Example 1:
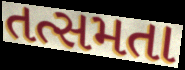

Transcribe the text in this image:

તત્સમતા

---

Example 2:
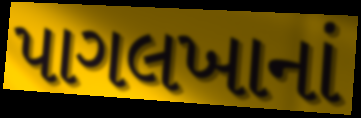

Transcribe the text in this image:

પાગલખાનાં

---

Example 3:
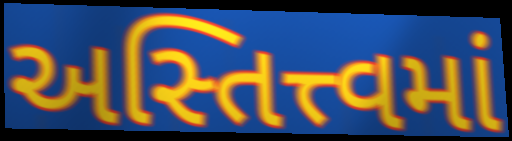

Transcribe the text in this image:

અસ્તિત્ત્વમાં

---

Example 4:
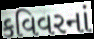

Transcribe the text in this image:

કવિવરનાં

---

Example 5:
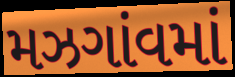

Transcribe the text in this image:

મઝગાંવમાં